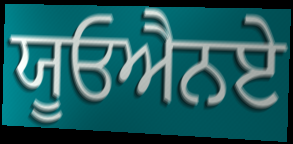
ਯੂਓਐਨਏ